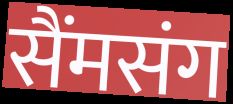
सैंमसंग